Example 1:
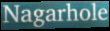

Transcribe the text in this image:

Nagarhole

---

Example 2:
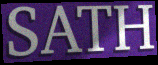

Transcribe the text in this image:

SATH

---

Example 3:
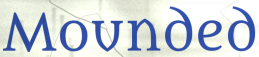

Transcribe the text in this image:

Mounded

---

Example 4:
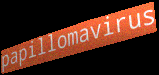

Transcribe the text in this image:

papillomavirus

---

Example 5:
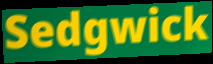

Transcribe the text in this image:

Sedgwick